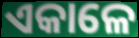
ଏକାଳେ